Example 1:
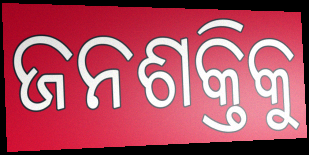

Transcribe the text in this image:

ଜନଶକ୍ତିକୁ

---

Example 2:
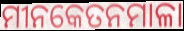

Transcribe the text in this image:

ମୀନକେତନମାଳା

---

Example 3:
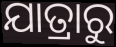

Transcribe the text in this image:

ଯାତ୍ରାରୁ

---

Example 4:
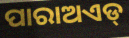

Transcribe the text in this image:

ପାରାଅଏଡ୍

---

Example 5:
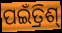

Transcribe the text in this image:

ପଇଁତ୍ରିଶ୍